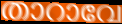
താറാവേ